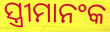
ସ୍ତ୍ରୀମାନଂକ